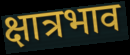
क्षात्रभाव